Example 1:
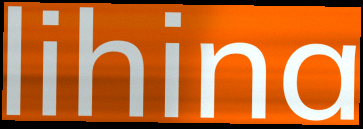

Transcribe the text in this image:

lihina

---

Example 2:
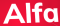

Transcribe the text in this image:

Alfa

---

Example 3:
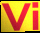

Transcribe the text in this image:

Vi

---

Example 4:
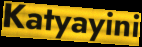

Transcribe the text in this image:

Katyayini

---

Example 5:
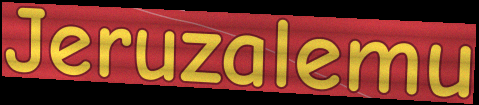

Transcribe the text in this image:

Jeruzalemu